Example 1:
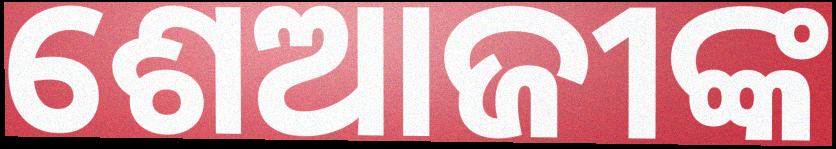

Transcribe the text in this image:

ଶେଆଜୀଙ୍କ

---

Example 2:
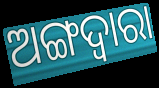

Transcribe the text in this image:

ଅଙ୍ଗଦ୍ଵାରା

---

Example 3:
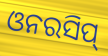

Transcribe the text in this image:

ଓନରସିପ୍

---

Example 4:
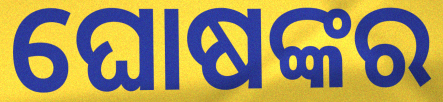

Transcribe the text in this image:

ଘୋଷଙ୍କର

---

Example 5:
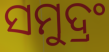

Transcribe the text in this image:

ସମୁଦ୍ରଂ